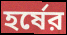
হর্ষের